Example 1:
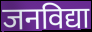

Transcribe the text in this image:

जनविद्या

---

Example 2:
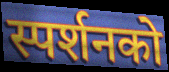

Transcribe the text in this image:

स्पर्शनको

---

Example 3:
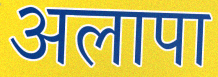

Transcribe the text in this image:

अलापा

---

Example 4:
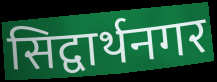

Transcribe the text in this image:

सिद्वार्थनगर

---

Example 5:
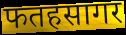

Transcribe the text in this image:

फतहसागर